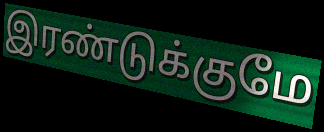
இரண்டுக்குமே